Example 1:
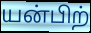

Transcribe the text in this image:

யன்பிற்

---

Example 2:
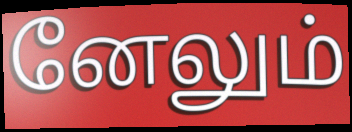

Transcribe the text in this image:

னேலும்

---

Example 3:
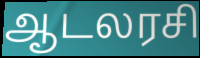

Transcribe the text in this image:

ஆடலரசி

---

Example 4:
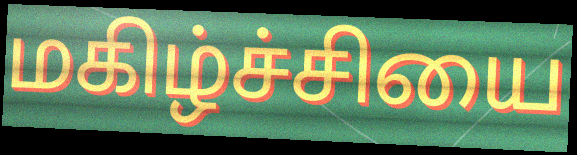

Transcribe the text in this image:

மகிழ்ச்சியை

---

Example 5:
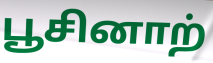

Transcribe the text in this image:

பூசினாற்